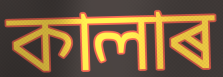
কালাৰ